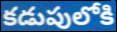
కడుపులోకి